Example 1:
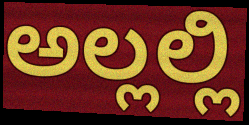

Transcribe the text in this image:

ಅಲ್ಲಲ್ಲಿ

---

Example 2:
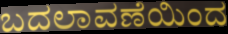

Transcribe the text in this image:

ಬದಲಾವಣೆಯಿಂದ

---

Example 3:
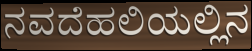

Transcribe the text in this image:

ನವದೆಹಲಿಯಲ್ಲಿನ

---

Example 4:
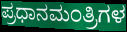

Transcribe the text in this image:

ಪ್ರಧಾನಮಂತ್ರಿಗಳ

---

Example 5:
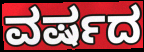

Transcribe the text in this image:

ವರ್ಷದ